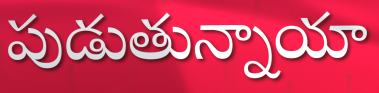
పుడుతున్నాయా